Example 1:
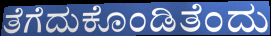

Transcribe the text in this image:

ತೆಗೆದುಕೊಂಡಿತೆಂದು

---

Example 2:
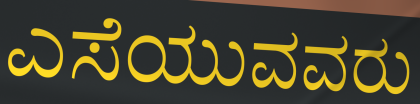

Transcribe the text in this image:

ಎಸೆಯುವವರು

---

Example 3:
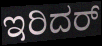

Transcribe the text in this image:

ಇರಿದರ್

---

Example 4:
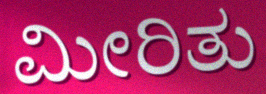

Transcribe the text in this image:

ಮೀರಿತು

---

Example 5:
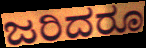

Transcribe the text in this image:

ಜರಿದರೂ